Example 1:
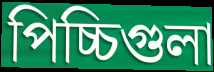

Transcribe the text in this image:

পিচ্চিগুলা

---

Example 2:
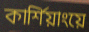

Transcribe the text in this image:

কার্শিয়াংয়ে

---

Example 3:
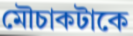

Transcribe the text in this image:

মৌচাকটাকে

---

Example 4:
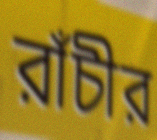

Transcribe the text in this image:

রাঁচীর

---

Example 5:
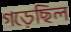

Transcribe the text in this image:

গড়েছিল